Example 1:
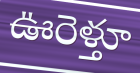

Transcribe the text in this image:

ఊరెళ్తూ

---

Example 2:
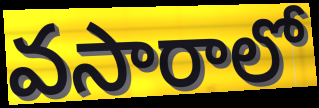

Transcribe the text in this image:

వసారాలో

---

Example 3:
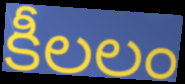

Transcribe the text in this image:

కీలలం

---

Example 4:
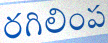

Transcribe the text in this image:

రగిలింప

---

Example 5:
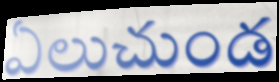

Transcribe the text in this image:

ఏలుచుండ